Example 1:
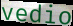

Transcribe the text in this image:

vedio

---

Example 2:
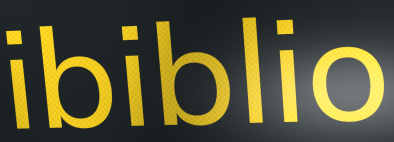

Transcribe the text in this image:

ibiblio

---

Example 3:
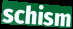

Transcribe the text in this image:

schism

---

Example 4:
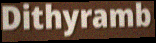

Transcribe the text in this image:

Dithyramb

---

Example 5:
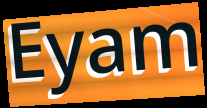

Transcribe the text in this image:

Eyam